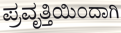
ಪ್ರವೃತ್ತಿಯಿಂದಾಗಿ